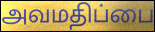
அவமதிப்பை